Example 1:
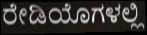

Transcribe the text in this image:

ರೇಡಿಯೊಗಳಲ್ಲಿ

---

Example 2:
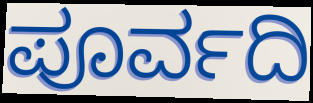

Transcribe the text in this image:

ಪೂರ್ವದಿ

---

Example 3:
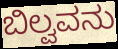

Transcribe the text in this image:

ಬಿಲ್ವವನು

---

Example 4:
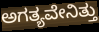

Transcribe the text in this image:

ಅಗತ್ಯವೇನಿತ್ತು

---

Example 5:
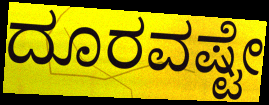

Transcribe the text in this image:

ದೂರವಷ್ಟೇ